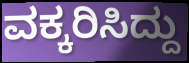
ವಕ್ಕರಿಸಿದ್ದು